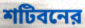
শটিবনের